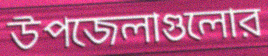
উপজেলাগুলোর